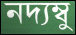
নদ্যম্বু